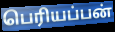
பெரியப்பன்